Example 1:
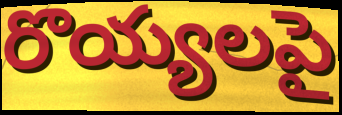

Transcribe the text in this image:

రొయ్యలపై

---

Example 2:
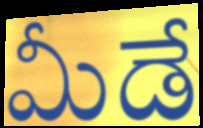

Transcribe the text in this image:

మీడే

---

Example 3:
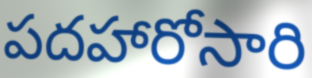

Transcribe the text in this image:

పదహారోసారి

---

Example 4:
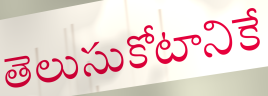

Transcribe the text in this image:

తెలుసుకోటానికే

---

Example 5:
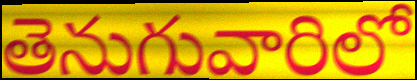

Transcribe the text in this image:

తెనుగువారిలో